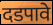
दडपावे